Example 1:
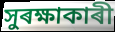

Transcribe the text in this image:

সুৰক্ষাকাৰী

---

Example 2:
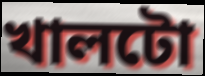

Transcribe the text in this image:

খালটো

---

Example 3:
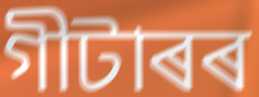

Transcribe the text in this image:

গীটাৰৰ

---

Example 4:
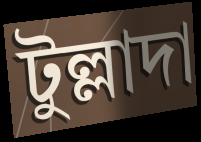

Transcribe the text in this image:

টুল্লাদা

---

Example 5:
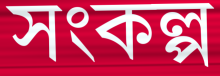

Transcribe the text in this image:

সংকল্প